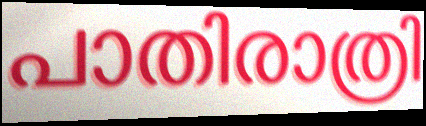
പാതിരാത്രി